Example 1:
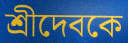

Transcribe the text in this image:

শ্রীদেবকে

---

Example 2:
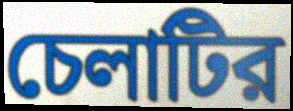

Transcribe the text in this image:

চেলাটির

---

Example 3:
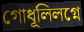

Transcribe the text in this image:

গোধূলিলগ্নে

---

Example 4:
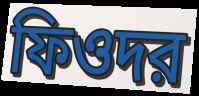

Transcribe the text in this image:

ফিওদর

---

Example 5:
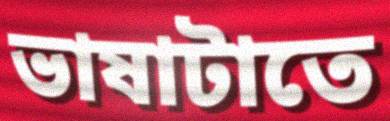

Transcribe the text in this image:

ভাষাটাতে